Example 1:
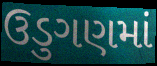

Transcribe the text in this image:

ઉડુગણમાં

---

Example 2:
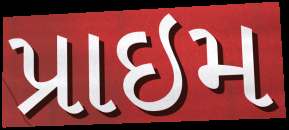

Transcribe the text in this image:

પ્રાઇમ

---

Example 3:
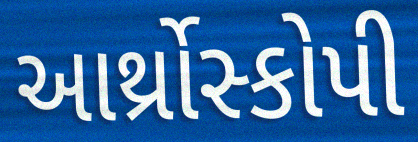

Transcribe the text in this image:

આર્થ્રોસ્કોપી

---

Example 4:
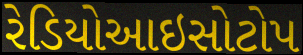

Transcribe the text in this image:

રેડિયોઆઇસોટોપ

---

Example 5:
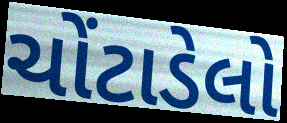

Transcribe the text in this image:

ચોંટાડેલો